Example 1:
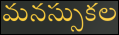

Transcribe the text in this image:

మనస్సుకల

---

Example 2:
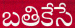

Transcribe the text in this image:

బతికేసే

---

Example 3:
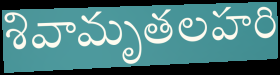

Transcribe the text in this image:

శివామృతలహరి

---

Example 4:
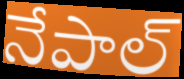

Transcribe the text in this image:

నేపాల్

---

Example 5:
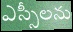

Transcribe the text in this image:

ఎస్సీలను